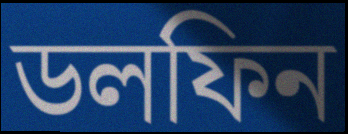
ডলফিন